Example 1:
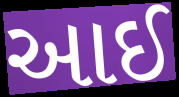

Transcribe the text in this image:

આઈ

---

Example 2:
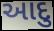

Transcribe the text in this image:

આદુ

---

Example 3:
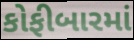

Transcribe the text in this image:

કોફીબારમાં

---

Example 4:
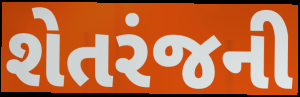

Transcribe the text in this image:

શેતરંજની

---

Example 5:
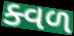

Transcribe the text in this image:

ક્વળ